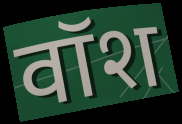
वॉश